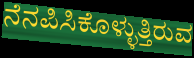
ನೆನಪಿಸಿಕೊಳ್ಳುತ್ತಿರುವ